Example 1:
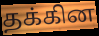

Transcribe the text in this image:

தக்கின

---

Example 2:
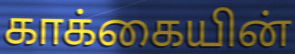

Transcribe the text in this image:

காக்கையின்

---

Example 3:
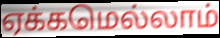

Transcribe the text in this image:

ஏக்கமெல்லாம்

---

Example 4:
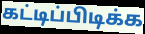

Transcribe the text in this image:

கட்டிப்பிடிக்க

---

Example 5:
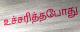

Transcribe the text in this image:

உச்சரித்தபோது